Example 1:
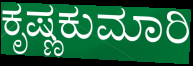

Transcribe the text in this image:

ಕೃಷ್ಣಕುಮಾರಿ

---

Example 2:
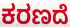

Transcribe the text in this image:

ಕರಣದೆ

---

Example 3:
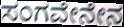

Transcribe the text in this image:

ಸಂಗವೇನೇನ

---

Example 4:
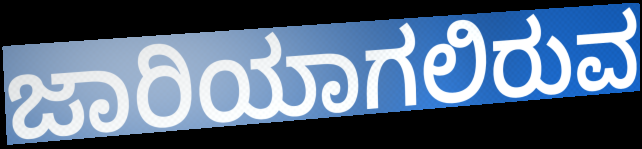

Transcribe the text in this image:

ಜಾರಿಯಾಗಲಿರುವ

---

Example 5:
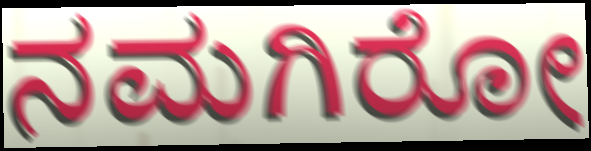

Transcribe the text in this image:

ನಮಗಿರೋ